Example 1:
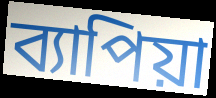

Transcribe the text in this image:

ব্যাপিয়া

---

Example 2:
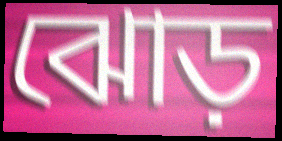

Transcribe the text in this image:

ঝোড়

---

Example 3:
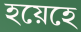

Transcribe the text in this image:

হয়েহে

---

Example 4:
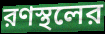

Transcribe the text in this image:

রণস্থলের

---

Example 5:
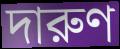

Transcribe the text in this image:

দারুণ